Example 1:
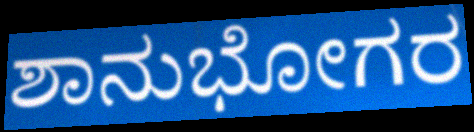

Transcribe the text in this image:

ಶಾನುಭೋಗರ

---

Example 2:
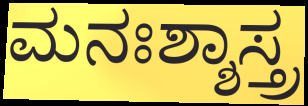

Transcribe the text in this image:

ಮನಃಶ್ಶಾಸ್ತ್ರ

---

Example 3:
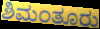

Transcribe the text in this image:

ಶಿಮಂತೂರು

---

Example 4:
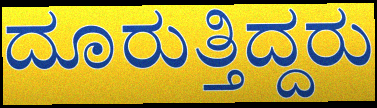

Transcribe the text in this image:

ದೂರುತ್ತಿದ್ದರು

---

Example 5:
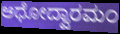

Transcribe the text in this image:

ಆಧೋದ್ವಾರಮಂ